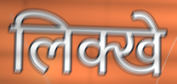
लिक्खे